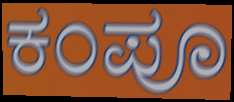
ಕಂಪೂ